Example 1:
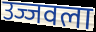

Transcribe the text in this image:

उज्‍जवला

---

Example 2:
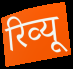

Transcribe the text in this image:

रिव्‍यू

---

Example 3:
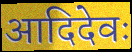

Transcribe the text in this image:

आदिदेवः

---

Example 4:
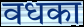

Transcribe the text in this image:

वधका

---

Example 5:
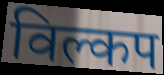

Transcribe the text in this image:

विल्कप